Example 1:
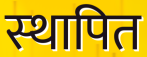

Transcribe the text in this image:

स्‍थापित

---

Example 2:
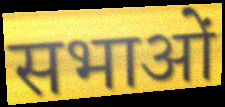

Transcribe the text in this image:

सभाओं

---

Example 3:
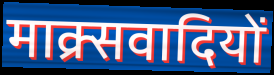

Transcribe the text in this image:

माक्र्सवादियों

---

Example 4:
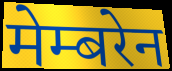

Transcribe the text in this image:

मेम्बरेन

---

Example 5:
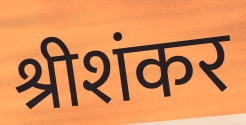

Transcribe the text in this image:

श्रीशंकर